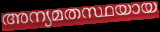
അന്യമതസ്ഥയായ